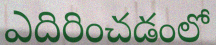
ఎదిరించడంలో